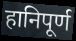
हानिपूर्ण